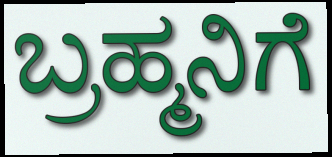
ಬ್ರಹ್ಮನಿಗೆ